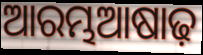
ଆରମ୍ଭଆଷାଢ଼